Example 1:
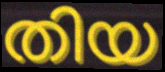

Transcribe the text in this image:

തിയ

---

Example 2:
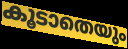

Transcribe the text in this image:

കൂടാതെയും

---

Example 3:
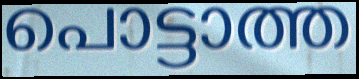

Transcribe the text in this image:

പൊട്ടാത്ത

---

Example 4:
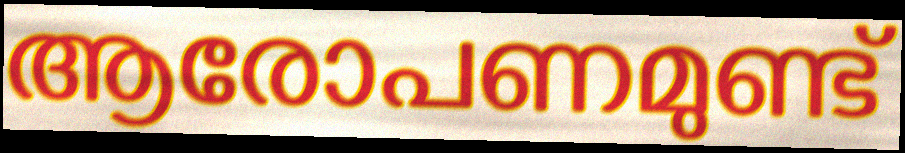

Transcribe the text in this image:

ആരോപണമുണ്ട്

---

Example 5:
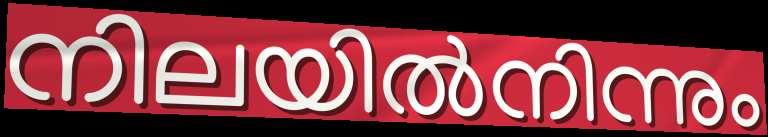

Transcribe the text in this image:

നിലയിൽനിന്നും